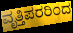
ವೃತ್ತಿಪರರಿಂದ